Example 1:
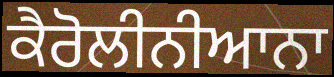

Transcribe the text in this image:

ਕੈਰੋਲੀਨੀਆਨਾ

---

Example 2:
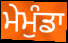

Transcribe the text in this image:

ਮੇਮੁੰਡਾ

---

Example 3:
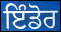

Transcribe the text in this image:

ਇੰਡੋਰ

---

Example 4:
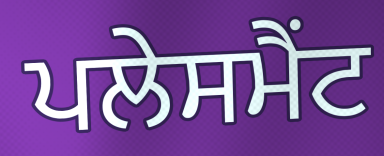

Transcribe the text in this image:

ਪਲੇਸਮੈਂਟ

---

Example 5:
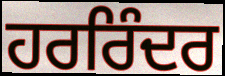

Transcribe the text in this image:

ਹਰਰਿੰਦਰ